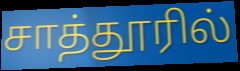
சாத்தூரில்